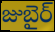
జుబైర్